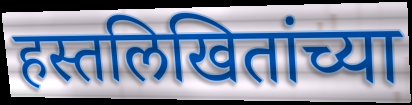
हस्तलिखितांच्या